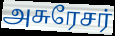
அசுரேசர்